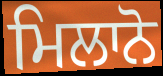
ਮਿਲਾਨੋ